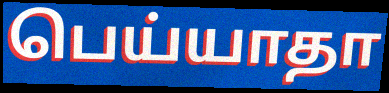
பெய்யாதா